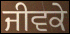
ਜੀਵਕੇ